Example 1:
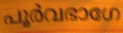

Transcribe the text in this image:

പൂർവഭാഗേ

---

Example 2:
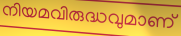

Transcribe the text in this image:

നിയമവിരുദ്ധവുമാണ്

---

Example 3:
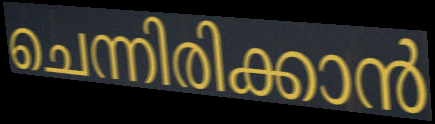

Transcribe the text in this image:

ചെന്നിരിക്കാൻ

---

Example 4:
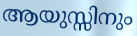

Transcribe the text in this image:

ആയുസ്സിനും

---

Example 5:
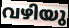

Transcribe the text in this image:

വഴിയു